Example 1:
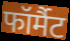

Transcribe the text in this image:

फॉर्मैट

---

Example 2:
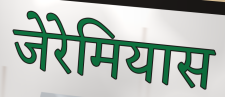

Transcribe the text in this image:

जेरेमियास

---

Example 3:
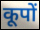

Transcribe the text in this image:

कूपों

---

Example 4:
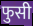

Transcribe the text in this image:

फुसी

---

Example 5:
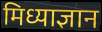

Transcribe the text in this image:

मिध्याज्ञान